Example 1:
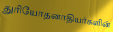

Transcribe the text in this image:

துரியோதனாதியர்களின்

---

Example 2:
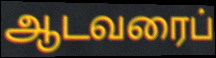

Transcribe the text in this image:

ஆடவரைப்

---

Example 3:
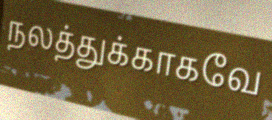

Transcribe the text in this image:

நலத்துக்காகவே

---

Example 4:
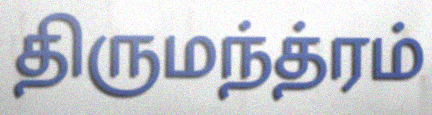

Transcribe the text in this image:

திருமந்த்ரம்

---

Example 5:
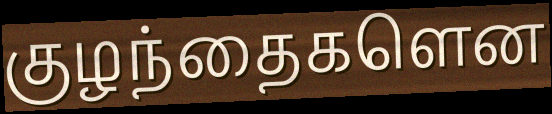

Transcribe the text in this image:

குழந்தைகளென